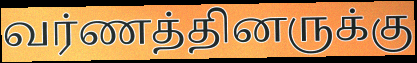
வர்ணத்தினருக்கு